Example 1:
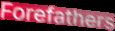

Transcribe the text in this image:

Forefathers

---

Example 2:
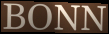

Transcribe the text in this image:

BONN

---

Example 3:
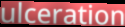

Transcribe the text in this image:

ulceration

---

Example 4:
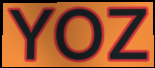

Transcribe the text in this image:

YOZ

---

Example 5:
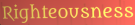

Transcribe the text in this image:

Righteousness